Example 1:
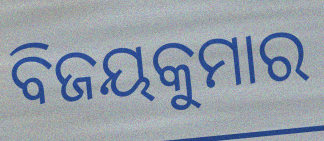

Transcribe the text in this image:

ବିଜୟକୁମାର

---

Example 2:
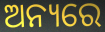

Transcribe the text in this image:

ଅନ୍ୟରେ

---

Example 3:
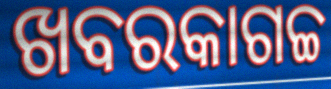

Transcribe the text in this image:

ଖବରକାଗଚ୍ଚ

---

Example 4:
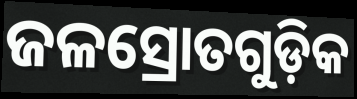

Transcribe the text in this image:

ଜଳସ୍ରୋତଗୁଡ଼ିକ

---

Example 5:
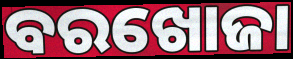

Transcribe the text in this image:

ବରଖୋଜା